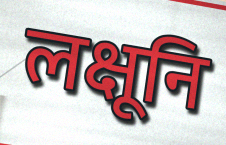
लक्षूनि